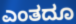
ಎಂತದೂ